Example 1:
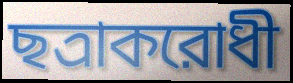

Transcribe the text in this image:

ছত্রাকরোধী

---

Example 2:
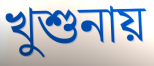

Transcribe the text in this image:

খুশুনায়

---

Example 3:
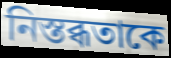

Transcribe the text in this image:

নিস্তব্ধতাকে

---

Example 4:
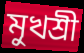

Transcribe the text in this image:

মুখশ্রী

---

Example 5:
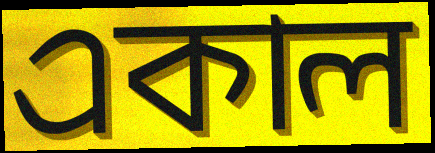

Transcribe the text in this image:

একাল